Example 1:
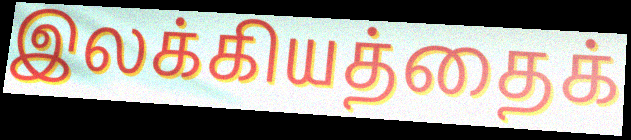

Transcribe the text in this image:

இலக்கியத்தைக்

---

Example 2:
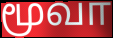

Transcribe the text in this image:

மூவா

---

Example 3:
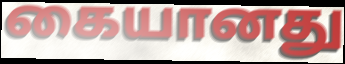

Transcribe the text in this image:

கையானது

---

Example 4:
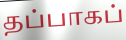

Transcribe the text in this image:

தப்பாகப்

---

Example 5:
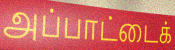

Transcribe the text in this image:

அப்பாட்டைக்